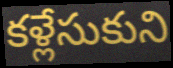
కళ్లేసుకుని